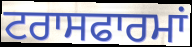
ਟਰਾਸਫਾਰਮਾਂ